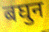
बघुन